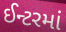
ઈન્ટરમાં